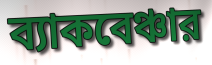
ব্যাকবেঞ্চার